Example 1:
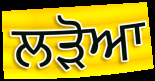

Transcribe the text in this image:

ਲੜੋਆ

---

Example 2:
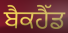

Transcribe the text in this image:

ਬੈਕਹੈੱਡ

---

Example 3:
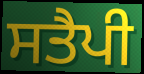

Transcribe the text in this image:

ਸਤੈਪੀ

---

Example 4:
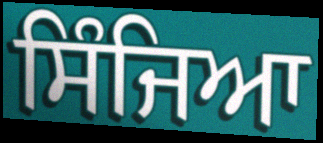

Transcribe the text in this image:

ਸਿੰਜਿਆ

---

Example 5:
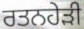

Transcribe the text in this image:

ਰਤਨਹੇੜੀ